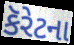
કૅરેટના